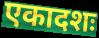
एकादशः